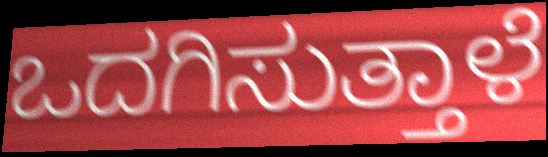
ಒದಗಿಸುತ್ತಾಳೆ